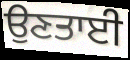
ਉਣਤਾਈ